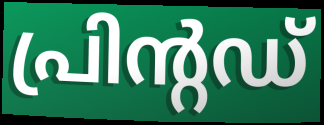
പ്രിന്റഡ്